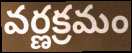
వర్ణక్రమం